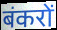
बंकरों